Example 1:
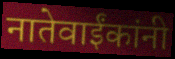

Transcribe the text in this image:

नातेवाईंकांनी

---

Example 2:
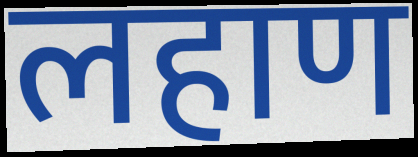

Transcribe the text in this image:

लहाण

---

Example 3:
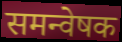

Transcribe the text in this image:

समन्वेषक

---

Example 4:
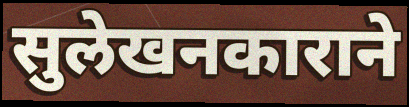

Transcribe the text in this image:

सुलेखनकाराने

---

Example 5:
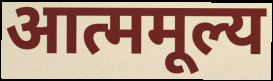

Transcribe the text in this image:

आत्ममूल्य